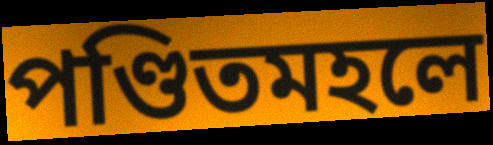
পণ্ডিতমহলে